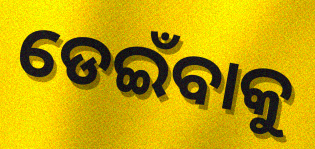
ଡେଇଁବାକୁ